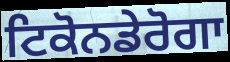
ਟਿਕੋਨਡੇਰੋਗਾ